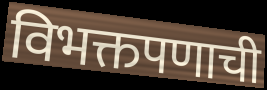
विभक्तपणाची